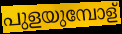
പുളയുമ്പോള്